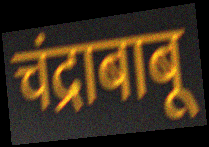
चंद्राबाबू